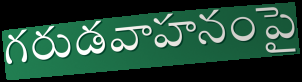
గరుడవాహనంపై